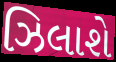
ઝિલાશે